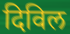
दिविल